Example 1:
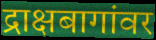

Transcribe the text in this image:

द्राक्षबागांवर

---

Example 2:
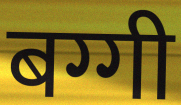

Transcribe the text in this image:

बग्गी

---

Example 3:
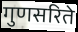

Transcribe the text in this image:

गुणसरिते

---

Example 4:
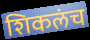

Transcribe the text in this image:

शिकलंच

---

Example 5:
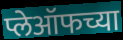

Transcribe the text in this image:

प्लेऑफच्या